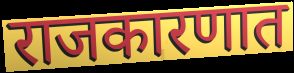
राजकारणात